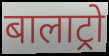
बालाट्रो